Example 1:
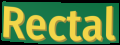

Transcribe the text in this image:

Rectal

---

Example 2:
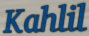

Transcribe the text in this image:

Kahlil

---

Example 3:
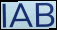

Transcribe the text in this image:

IAB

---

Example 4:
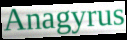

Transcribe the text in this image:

Anagyrus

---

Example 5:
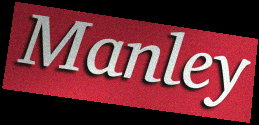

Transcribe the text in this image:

Manley